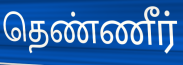
தெண்ணீர்